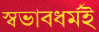
স্বভাবধর্মই